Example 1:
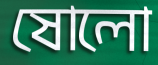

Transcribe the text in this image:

ষোলো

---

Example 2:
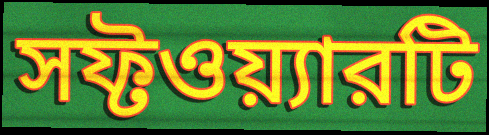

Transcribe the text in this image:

সফ্টওয়্যারটি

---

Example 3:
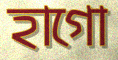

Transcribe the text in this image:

হাগো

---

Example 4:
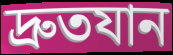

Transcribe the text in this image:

দ্রুতযান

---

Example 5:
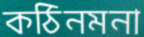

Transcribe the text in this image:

কঠিনমনা